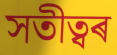
সতীত্বৰ